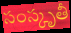
సంస్కృతీ